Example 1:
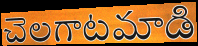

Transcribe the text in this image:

చెలగాటమాడి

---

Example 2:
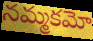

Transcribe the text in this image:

నమ్మకమో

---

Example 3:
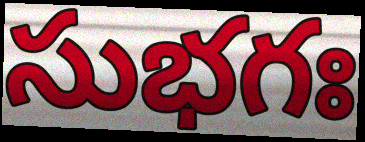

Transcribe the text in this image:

సుభగః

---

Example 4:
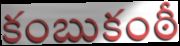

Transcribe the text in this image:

కంబుకంఠీ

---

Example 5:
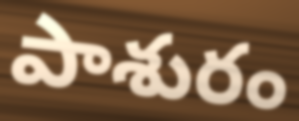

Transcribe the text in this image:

పాశురం